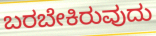
ಬರಬೇಕಿರುವುದು